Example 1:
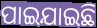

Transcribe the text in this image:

ପାଇଯାଇଛି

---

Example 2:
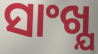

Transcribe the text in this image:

ସାଂଖ୍ଯ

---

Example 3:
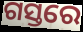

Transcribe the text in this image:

ଗସ୍ତରେ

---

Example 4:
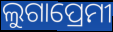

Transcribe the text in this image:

ଲୁଗାପ୍ରେମୀ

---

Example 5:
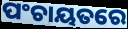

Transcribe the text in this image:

ପଂଚାୟତରେ